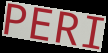
PERI